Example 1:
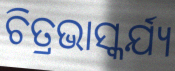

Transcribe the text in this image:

ଚିତ୍ରଭାସ୍କର୍ଯ୍ୟ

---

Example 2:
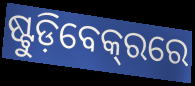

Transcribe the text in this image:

ଷ୍ଟୁଡ଼ିବେକ୍‌ରରେ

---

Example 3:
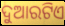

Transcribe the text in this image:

ଦୁଆରଟିଏ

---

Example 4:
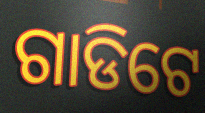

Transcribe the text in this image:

ଗାଡିଟେ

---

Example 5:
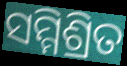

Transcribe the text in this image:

ସମ୍ମିଶ୍ରିତ